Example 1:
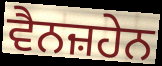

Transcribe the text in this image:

ਵੈਨਜ਼ਹੇਨ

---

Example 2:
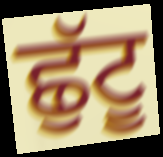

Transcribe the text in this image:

ਛੁੱਟੂ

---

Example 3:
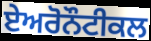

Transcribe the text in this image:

ਏਅਰੋਨੌਟੀਕਲ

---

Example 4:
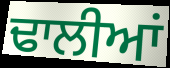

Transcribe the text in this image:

ਢਾਲੀਆਂ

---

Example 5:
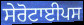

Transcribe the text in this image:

ਸੇਰੋਟਾਈਪਸ